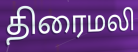
திரைமலி